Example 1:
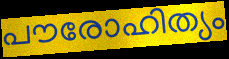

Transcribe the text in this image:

പൗരോഹിത്യം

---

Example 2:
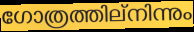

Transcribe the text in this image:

ഗോത്രത്തില്നിന്നും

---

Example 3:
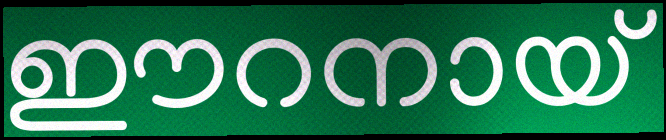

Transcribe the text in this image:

ഈറനായ്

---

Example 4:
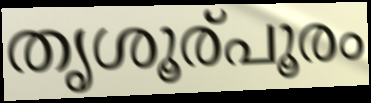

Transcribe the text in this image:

തൃശൂര്പൂരം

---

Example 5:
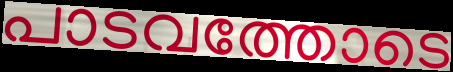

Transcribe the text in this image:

പാടവത്തോടെ